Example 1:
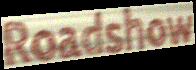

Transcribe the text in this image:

Roadshow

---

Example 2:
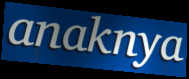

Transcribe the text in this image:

anaknya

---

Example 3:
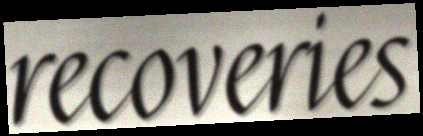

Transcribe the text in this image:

recoveries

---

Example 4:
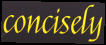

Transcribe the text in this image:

concisely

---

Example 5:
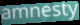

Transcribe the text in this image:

amnesty